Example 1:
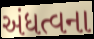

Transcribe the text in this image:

અંધત્વના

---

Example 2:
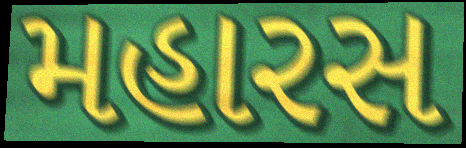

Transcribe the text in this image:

મહારસ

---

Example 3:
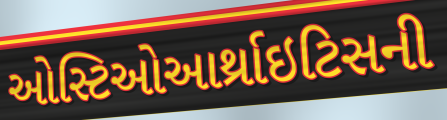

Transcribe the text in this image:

ઓસ્ટિઓઆર્થ્રાઇટિસની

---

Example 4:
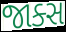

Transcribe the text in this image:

જાક્સ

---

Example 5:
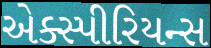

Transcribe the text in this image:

એક્સ્પીરિયન્સ